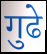
गुढे